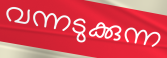
വന്നടുക്കുന്ന